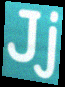
Jj